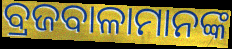
ବ୍ରଜବାଳାମାନଙ୍କ